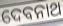
ଦେବନାଥ